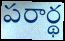
పరార్థ